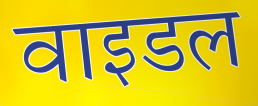
वाइडल